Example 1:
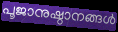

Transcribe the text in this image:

പൂജാനുഷ്ഠാനങ്ങൾ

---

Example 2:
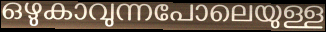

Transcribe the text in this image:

ഒഴുകാവുന്നപോലെയുള്ള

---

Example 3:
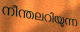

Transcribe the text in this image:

നീന്തലറിയുന്ന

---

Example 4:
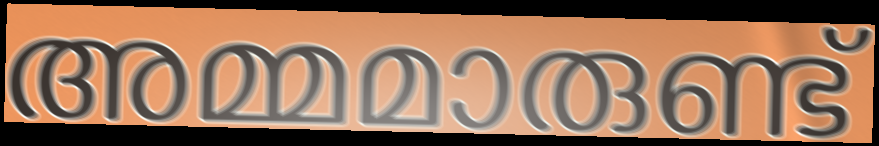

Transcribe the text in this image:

അമ്മമാരുണ്ട്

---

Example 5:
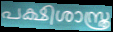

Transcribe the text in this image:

പക്ഷിശാസ്ത്ര